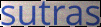
sutras